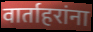
वार्ताहरांना